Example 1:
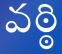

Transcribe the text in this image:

వఠ్ఠి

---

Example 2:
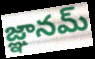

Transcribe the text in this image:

జ్ఞానమ్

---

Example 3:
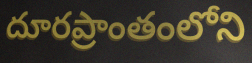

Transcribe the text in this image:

దూరప్రాంతంలోని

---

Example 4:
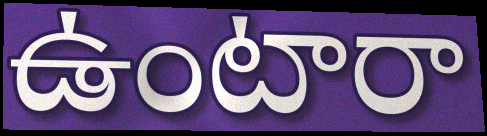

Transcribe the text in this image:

ఉంటారా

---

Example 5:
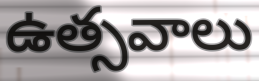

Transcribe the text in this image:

ఉత్సవాలు